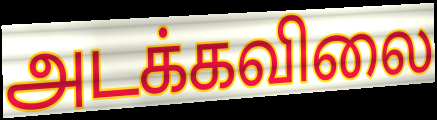
அடக்கவிலை